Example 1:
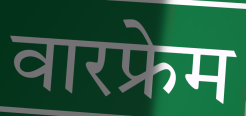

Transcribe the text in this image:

वारफ्रेम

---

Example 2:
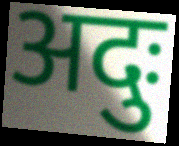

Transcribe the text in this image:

अदुः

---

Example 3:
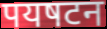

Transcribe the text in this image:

पयषटन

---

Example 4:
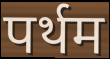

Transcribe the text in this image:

पर्थम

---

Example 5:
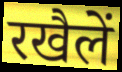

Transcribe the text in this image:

रखैलें